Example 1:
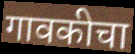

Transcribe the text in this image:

गावकीचा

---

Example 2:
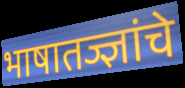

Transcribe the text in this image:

भाषातज्ज्ञांचे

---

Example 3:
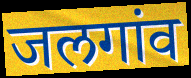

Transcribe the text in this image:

जलगांव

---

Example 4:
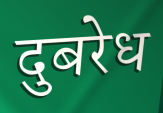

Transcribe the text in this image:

दुबरेध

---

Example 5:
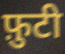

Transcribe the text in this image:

फ़ुटी